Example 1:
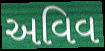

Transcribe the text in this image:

અવિવ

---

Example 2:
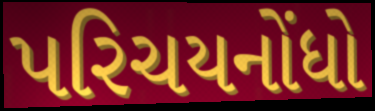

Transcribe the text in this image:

પરિચયનોંધો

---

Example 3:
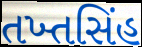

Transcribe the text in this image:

તખ્તસિંહ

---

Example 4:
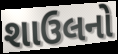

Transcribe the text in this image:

શાઉલનો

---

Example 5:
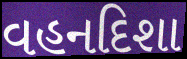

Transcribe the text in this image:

વહનદિશા